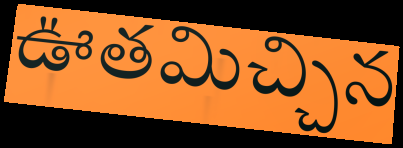
ఊతమిచ్చిన